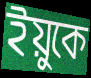
ইয়ুকে